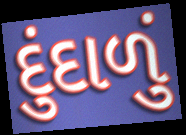
દુંદાળું